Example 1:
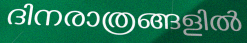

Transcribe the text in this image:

ദിനരാത്രങ്ങളിൽ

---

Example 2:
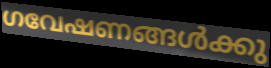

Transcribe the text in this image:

ഗവേഷണങ്ങൾക്കു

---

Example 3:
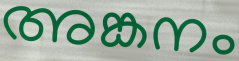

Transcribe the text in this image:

അങ്കനം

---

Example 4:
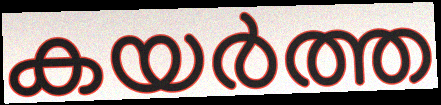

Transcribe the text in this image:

കയർത്ത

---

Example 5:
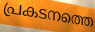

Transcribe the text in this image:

പ്രകടനത്തെ